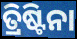
ତ୍ରିଷ୍ଟିନା